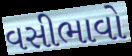
વસીભાવો